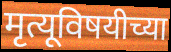
मृत्यूविषयीच्या